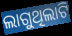
ଲାଗୁଥିଲାଟି